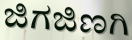
ಜಿಗಜಿಣಗಿ